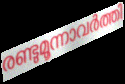
രണ്ടുമൂന്നാവർത്തി